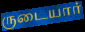
ருடையார்